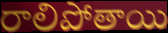
రాలిపోతాయి